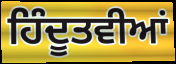
ਹਿੰਦੂਤਵੀਆਂ